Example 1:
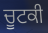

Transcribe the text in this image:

ਚੂਟਕੀ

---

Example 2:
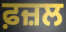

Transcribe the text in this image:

ਫ਼ਜ਼ਲ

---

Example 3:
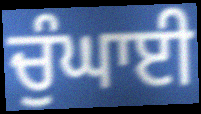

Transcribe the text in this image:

ਚੁੰਘਾਈ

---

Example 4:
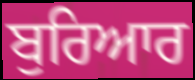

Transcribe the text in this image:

ਬੁਰਿਆਰ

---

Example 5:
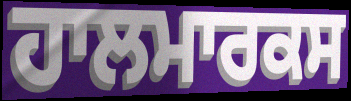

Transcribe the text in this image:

ਹਾਲਮਾਰਕਸ